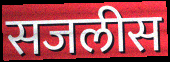
सजलीस